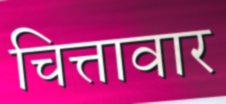
चित्तावार